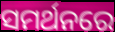
ସମର୍ଥନରେ